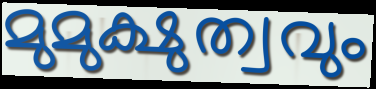
മുമുക്ഷുത്വവും